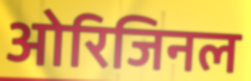
ओरिजिनल